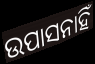
ଉପାସନାହିଁ